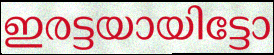
ഇരട്ടയായിട്ടോ